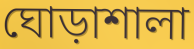
ঘোড়াশালা